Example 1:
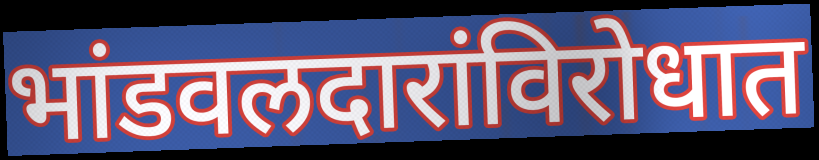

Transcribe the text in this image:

भांडवलदारांविरोधात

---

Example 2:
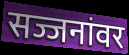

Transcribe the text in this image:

सज्जनांवर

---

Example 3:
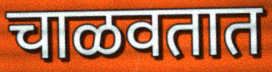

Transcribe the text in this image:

चाळवतात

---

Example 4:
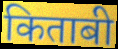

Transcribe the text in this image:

किताबी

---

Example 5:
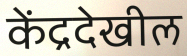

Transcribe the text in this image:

केंद्रदेखील